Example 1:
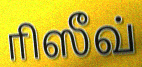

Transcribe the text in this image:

ரிஸீவ்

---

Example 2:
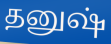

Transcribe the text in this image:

தனுஷ்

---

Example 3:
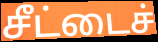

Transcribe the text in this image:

சீட்டைச்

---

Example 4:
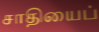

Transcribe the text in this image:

சாதியைப்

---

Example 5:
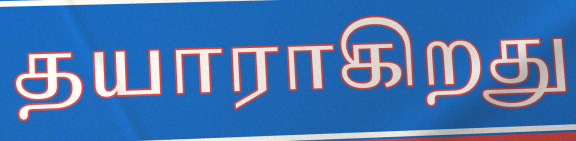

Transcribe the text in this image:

தயாராகிறது